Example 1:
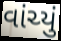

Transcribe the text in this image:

વાંચ્યું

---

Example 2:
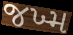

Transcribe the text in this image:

જખ્મ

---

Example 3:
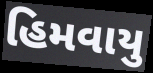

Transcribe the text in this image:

હિમવાયુ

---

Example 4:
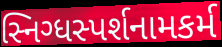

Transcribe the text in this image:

સ્નિગ્ધસ્પર્શનામકર્મ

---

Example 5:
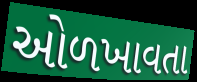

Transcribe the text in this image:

ઓળખાવતા